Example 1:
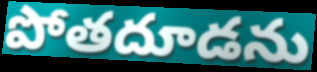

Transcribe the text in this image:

పోతదూడను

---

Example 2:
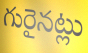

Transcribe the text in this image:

గురైనట్లు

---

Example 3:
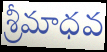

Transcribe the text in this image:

శ్రీమాధవ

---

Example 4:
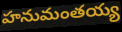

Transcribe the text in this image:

హనుమంతయ్య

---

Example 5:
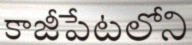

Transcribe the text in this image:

కాజీపేటలోని